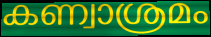
കണ്വാശ്രമം